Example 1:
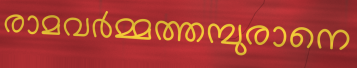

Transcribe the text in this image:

രാമവർമ്മത്തമ്പുരാനെ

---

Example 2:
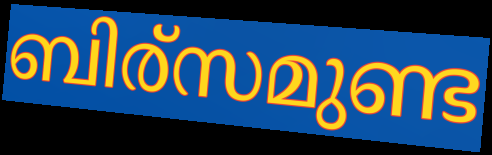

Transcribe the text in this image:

ബിര്സമുണ്ട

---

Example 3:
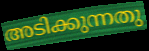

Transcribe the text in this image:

അടിക്കുന്നതു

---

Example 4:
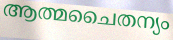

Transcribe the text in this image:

ആത്മചൈതന്യം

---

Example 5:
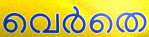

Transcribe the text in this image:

വെർതെ